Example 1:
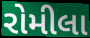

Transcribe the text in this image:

રોમીલા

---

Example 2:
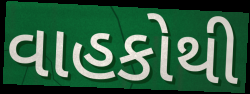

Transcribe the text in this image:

વાહકોથી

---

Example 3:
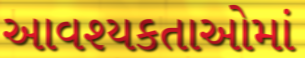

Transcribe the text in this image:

આવશ્યકતાઓમાં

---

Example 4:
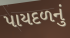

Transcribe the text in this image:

પાયદળનું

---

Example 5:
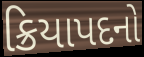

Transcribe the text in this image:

ક્રિયાપદનો